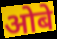
ओबे